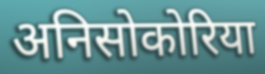
अनिसोकोरिया